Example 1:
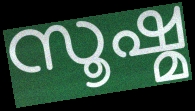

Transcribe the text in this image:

സൂഷ്മ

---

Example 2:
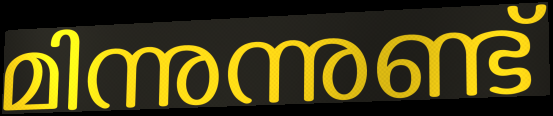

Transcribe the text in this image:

മിന്നുന്നുണ്ട്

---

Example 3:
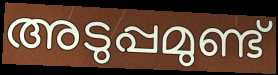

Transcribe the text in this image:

അടുപ്പമുണ്ട്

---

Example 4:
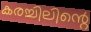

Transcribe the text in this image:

കരച്ചിലിന്റെ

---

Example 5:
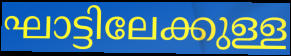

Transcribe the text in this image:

ഘാട്ടിലേക്കുള്ള